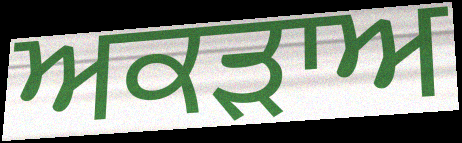
ਅਕੜਾਅ